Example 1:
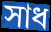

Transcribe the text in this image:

সাধ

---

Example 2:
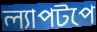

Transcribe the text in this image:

ল্যাপটপে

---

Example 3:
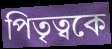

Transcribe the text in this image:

পিতৃত্বকে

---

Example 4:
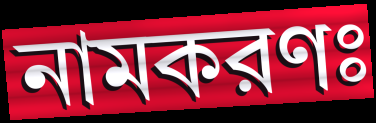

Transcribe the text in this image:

নামকরণঃ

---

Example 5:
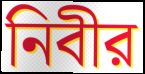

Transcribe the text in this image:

নিবীর